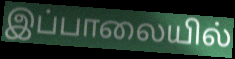
இப்பாலையில்